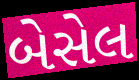
બેસેલ